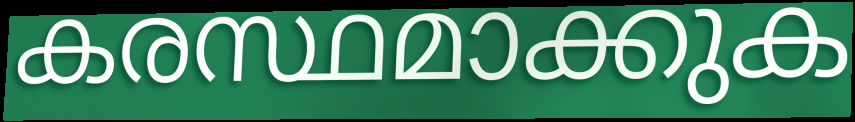
കരസ്ഥമാക്കുക